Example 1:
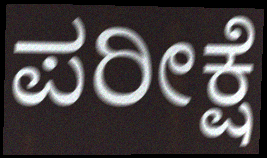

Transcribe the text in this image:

ಪರೀಕ್ಷೆ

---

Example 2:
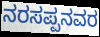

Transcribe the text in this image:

ನರಸಪ್ಪನವರ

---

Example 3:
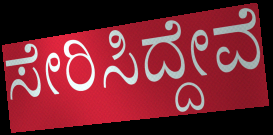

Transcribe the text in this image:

ಸೇರಿಸಿದ್ದೇವೆ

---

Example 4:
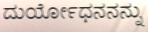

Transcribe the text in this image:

ದುರ್ಯೋಧನನನ್ನು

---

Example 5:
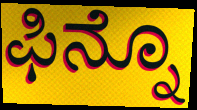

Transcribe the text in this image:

ಫಿನ್ನೊ